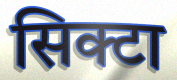
सिक्टा